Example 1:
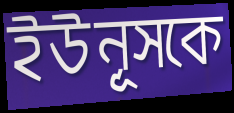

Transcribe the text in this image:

ইউনূসকে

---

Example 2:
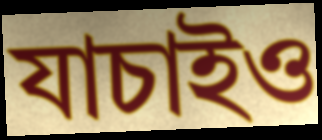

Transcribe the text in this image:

যাচাইও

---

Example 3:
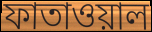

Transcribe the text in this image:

ফাতাওয়াল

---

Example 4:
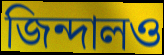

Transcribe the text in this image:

জিন্দালও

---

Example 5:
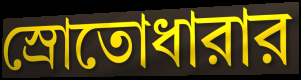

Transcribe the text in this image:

স্রোতোধারার